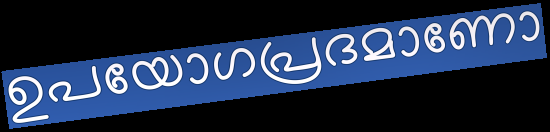
ഉപയോഗപ്രദമാണോ